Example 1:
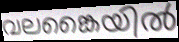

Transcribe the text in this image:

വലങ്കൈയിൽ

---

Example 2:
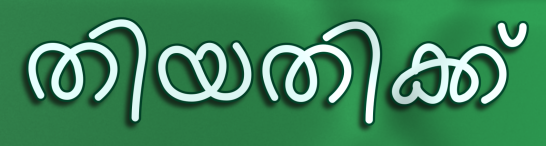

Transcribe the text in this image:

തിയതിക്ക്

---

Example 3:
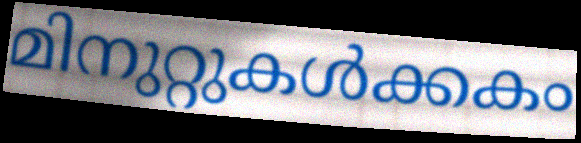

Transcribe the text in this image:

മിനുറ്റുകൾക്കകം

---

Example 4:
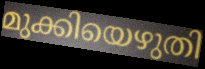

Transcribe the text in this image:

മുക്കിയെഴുതി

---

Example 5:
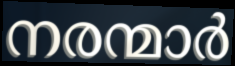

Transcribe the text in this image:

നരന്മാർ